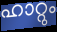
ഹാറ്റും